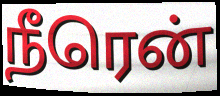
நீரென்